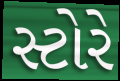
સ્ટોરે